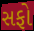
સફો